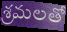
శ్రమలతో